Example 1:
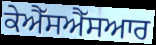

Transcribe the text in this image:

ਕੇਐੱਸਐੱਸਆਰ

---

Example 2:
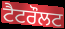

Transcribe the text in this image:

ਟੈਟਰੌਲਟ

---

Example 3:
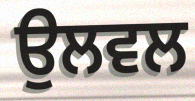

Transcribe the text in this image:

ਉਲਵਲ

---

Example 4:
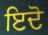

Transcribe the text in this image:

ਇਦੋ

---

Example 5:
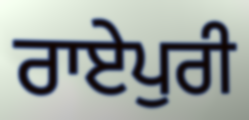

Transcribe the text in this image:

ਰਾਏਪੁਰੀ